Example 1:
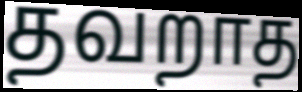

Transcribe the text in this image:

தவறாத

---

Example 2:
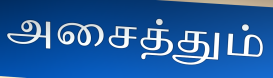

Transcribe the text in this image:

அசைத்தும்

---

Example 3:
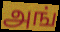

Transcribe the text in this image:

அங்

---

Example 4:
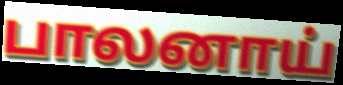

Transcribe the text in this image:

பாலனாய்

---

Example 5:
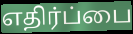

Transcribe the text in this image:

எதிர்ப்பை